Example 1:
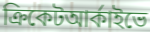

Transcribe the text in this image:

ক্রিকেটআর্কাইভে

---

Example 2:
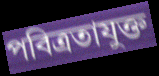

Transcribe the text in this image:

পবিত্রতাযুক্ত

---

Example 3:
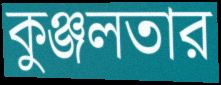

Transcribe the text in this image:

কুঞ্জলতার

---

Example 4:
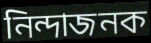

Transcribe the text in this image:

নিন্দাজনক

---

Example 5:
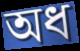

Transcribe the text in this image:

অধ